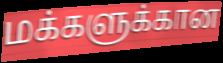
மக்களுக்கான